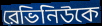
রেভিনিউকে